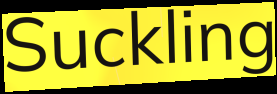
Suckling